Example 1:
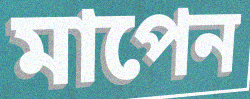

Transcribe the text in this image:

মাপেন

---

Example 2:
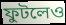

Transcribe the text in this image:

ফুটলেও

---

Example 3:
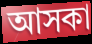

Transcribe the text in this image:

আসকা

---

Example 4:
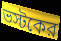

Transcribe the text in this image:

ভস্টকের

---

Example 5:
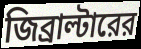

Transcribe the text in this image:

জিব্রাল্টারের